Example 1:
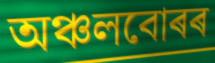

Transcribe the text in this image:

অঞ্চলবোৰৰ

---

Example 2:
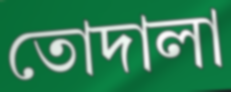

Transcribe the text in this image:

তোদালা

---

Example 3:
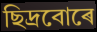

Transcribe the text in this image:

ছিদ্ৰবোৰে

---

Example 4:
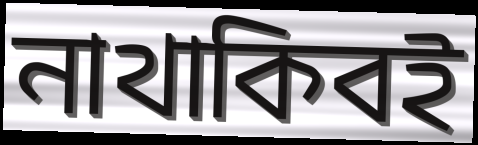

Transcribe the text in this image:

নাথাকিবই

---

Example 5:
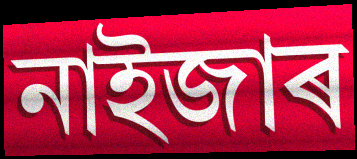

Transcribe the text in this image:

নাইজাৰ